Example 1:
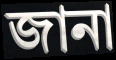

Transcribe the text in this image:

জানা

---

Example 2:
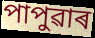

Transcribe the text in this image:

পাপুৱাৰ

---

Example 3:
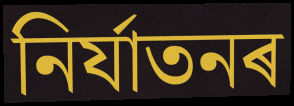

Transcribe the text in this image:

নিৰ্যাতনৰ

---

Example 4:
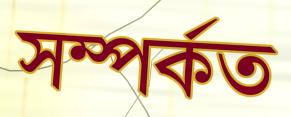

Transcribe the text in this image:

সম্পৰ্কত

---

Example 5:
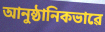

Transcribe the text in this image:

আনুষ্ঠানিকভাৱে